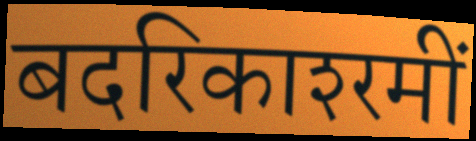
बदरिकाश्रमीं